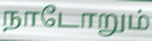
நாடோறும்